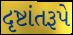
દૃષ્ટાંતરૂપે